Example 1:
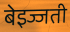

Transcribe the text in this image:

बेइज्जती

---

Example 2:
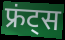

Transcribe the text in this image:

फ्रंट्स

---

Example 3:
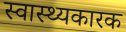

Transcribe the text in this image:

स्वास्थ्यकारक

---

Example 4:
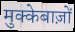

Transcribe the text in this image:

मुक्केबाज़ों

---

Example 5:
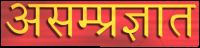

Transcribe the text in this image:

असम्प्रज्ञात